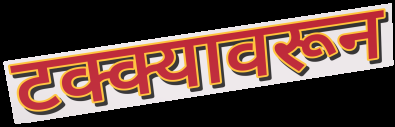
टक्क्यावरून